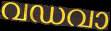
വഡവാ